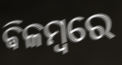
ଵିଳମ୍ବରେ